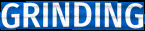
GRINDING